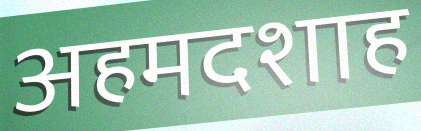
अहमदशाह